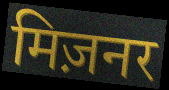
मिज़नर